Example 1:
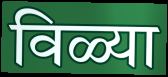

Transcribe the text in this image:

विळ्या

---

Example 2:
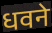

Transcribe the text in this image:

धवने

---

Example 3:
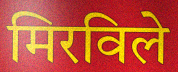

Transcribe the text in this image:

मिरविले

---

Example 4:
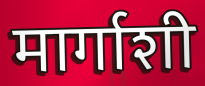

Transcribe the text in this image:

मार्गाशी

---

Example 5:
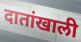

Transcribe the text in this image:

दातांखाली